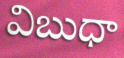
విబుధా